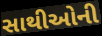
સાથીઓની